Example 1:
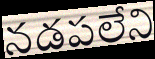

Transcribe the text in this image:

నడపలేని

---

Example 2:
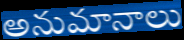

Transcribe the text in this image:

అనుమానాలు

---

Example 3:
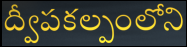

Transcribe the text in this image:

ద్వీపకల్పంలోని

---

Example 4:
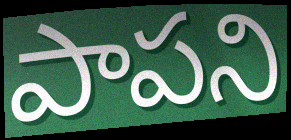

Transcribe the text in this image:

పాపని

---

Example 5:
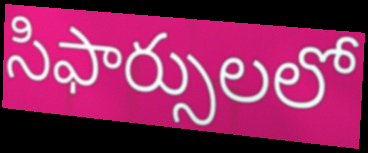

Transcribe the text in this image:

సిఫార్సులలో